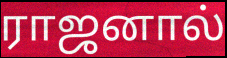
ராஜனால்